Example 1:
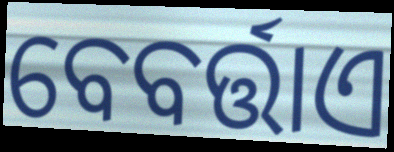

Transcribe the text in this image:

ବେବର୍ତ୍ତାଏ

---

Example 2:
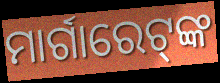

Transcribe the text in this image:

ମାର୍ଗାରେଟ୍‍ଙ୍କ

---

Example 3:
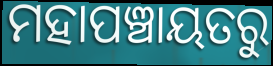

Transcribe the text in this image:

ମହାପଞ୍ଚାୟତରୁ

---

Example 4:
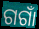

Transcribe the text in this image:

ଗଗାଁ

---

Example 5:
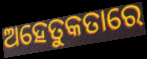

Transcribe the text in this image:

ଅହେତୁକତାରେ